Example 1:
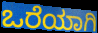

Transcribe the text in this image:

ಒರೆಯಾಗಿ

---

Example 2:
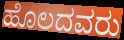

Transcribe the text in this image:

ಹೊಲದವರು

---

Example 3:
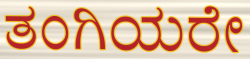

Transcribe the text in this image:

ತಂಗಿಯರೇ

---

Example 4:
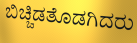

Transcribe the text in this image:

ಬಿಚ್ಚಿಡತೊಡಗಿದರು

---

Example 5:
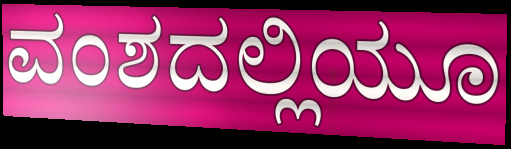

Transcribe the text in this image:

ವಂಶದಲ್ಲಿಯೂ